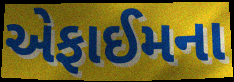
એફાઈમના